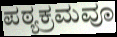
ಪಠ್ಯಕ್ರಮವೂ